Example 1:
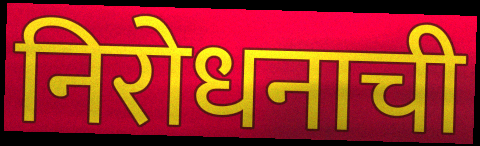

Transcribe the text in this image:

निरोधनाची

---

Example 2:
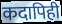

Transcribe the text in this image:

कदापिही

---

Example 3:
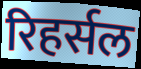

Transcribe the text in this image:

रिहर्सल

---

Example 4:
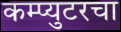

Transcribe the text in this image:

कम्प्युटरचा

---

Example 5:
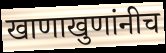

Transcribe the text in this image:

खाणाखुणांनीच